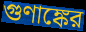
গুণাঙ্কের